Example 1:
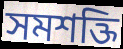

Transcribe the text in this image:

সমশক্তি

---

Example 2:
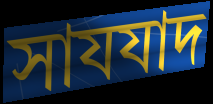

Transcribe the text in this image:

সাযযাদ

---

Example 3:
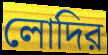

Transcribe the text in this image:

লোদির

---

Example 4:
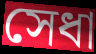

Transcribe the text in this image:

সেধা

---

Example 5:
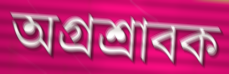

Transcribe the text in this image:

অগ্রশ্রাবক